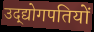
उद्द्योगपतियों